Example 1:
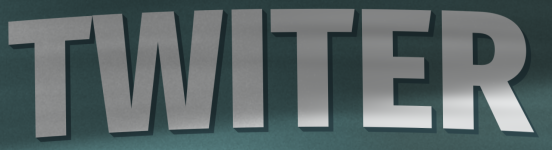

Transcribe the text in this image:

TWITER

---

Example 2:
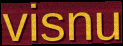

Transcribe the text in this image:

visnu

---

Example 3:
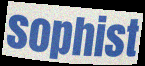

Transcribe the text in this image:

sophist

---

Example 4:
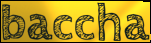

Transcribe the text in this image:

baccha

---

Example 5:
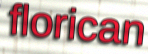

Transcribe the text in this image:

florican